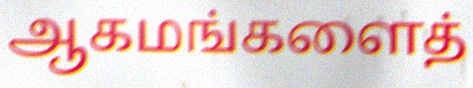
ஆகமங்களைத்